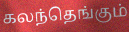
கலந்தெங்கும்